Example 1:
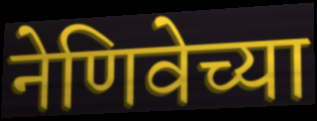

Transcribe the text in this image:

नेणिवेच्या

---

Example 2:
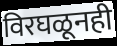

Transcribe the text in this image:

विरघळूनही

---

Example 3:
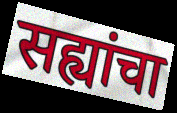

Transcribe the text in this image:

सह्यांचा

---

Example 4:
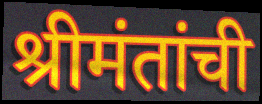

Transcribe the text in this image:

श्रीमंतांची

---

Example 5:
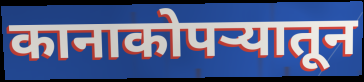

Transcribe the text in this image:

कानाकोपर्‍यातून